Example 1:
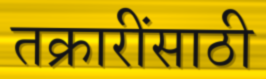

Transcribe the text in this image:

तक्रारींसाठी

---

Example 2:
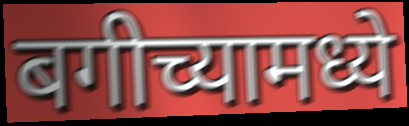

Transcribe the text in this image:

बगीच्यामध्ये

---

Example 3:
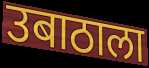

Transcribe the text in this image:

उबाठाला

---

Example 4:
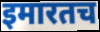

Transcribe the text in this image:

इमारतच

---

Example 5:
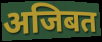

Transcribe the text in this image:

अजिबत